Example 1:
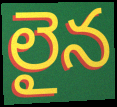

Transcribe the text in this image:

లైన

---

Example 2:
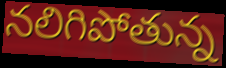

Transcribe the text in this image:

నలిగిపోతున్న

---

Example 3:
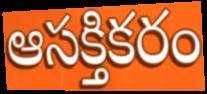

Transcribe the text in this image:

ఆసక్తికరం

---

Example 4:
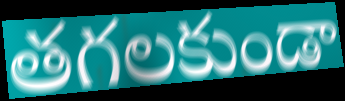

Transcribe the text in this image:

తగలకుండా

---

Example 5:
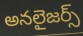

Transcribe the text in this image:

అనలైజర్స్